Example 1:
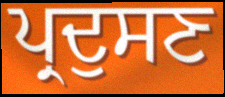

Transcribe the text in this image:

ਪ੍ਰਦੁਸਣ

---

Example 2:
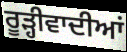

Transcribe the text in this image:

ਰੂੜ੍ਹੀਵਾਦੀਆਂ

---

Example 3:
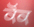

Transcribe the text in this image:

ਕੋਂਕ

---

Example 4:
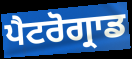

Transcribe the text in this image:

ਪੈਟਰੋਗ੍ਰਾਡ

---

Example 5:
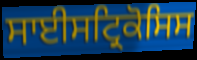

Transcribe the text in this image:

ਸਾਈਸਟ੍ਰਿਕੋਸਿਸ